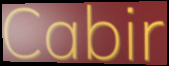
Cabir